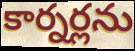
కార్నర్లను